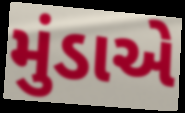
મુંડાએ